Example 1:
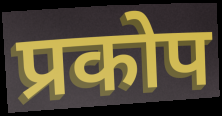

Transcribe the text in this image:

प्रकोप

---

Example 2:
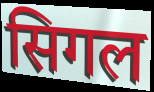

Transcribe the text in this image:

सिगल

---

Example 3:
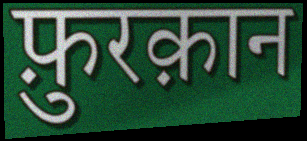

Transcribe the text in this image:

फ़ुरक़ान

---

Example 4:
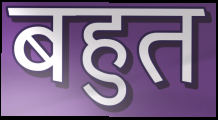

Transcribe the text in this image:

बहुत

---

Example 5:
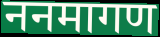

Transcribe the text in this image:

ननमागण